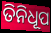
ତିନିଧୂପ